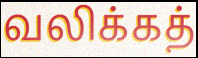
வலிக்கத்